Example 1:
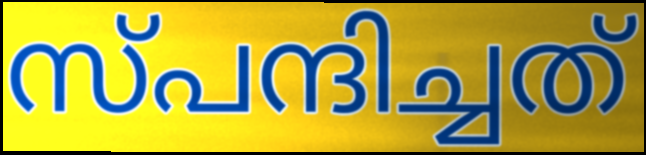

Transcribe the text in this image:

സ്പന്ദിച്ചത്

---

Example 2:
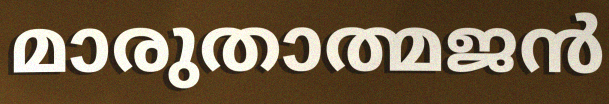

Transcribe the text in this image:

മാരുതാത്മജൻ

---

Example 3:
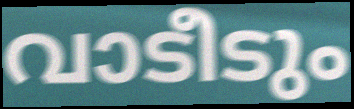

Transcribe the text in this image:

വാടീടും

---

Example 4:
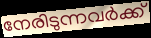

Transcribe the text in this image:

നേരിടുന്നവർക്ക്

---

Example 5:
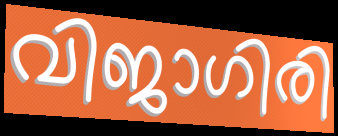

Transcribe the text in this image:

വിജാഗിരി